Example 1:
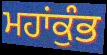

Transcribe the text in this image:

ਮਹਾਂਕੁੰਭ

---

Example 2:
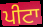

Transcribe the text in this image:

ਪੀਟਾ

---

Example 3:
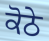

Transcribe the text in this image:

ਕੋਠੇ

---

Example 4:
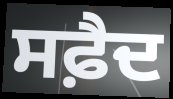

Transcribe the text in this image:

ਸਫ਼ੈਦ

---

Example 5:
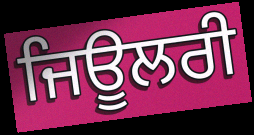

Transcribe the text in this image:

ਜਿਊਲਰੀ